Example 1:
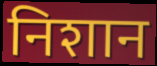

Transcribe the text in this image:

निशान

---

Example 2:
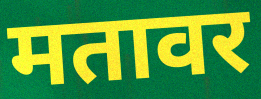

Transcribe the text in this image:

मतावर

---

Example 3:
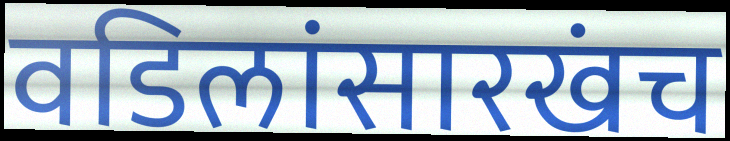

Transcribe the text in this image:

वडिलांसारखंच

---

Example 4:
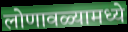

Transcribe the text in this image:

लोणावळ्यामध्ये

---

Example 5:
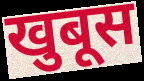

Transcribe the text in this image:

खुबूस